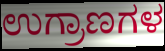
ಉಗ್ರಾಣಗಳ